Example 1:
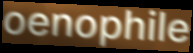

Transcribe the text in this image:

oenophile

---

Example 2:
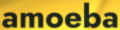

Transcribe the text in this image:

amoeba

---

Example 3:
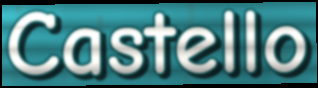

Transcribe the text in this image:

Castello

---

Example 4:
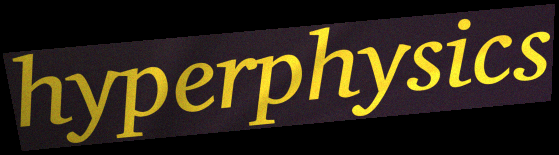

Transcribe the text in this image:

hyperphysics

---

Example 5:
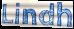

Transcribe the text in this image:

Lindh